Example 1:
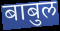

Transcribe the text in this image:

बाबुल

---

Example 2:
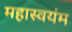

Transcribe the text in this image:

महास्वयंम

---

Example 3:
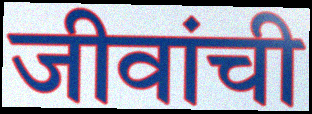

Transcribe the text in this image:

जीवांची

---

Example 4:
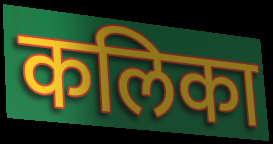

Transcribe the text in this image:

कलिका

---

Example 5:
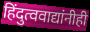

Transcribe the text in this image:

हिंदुत्ववाद्यांनीही